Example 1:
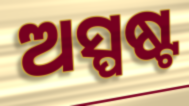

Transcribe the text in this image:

ଅସ୍ପଷ୍ଟ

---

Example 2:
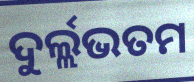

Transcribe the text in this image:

ଦୁର୍ଲ୍ଲଭତମ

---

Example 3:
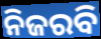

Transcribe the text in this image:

ନିଜରବି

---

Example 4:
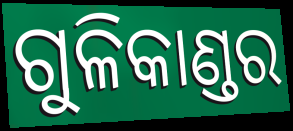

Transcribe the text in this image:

ଗୁଳିକାଣ୍ଡର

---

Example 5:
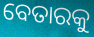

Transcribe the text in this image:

ବେତାରକୁ